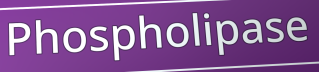
Phospholipase